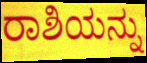
ರಾಶಿಯನ್ನು